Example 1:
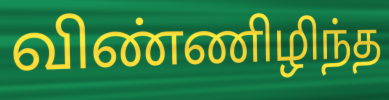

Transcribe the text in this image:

விண்ணிழிந்த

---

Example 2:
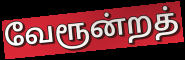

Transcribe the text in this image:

வேரூன்றத்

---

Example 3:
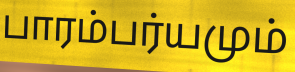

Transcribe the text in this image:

பாரம்பர்யமும்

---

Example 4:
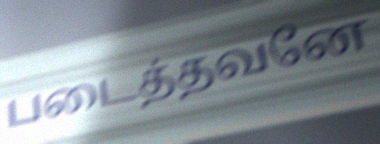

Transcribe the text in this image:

படைத்தவனே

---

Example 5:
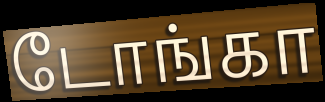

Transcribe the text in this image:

டோங்கா